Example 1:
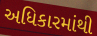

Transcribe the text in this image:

અધિકારમાંથી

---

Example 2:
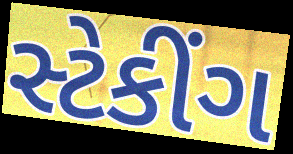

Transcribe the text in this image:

સ્ટેકીંગ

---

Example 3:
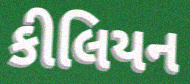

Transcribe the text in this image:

કીલિયન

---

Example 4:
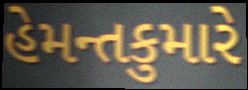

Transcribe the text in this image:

હેમન્તકુમારે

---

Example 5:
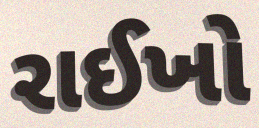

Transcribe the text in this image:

રાઈખો